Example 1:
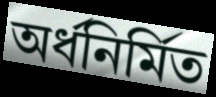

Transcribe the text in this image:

অর্ধনির্মিত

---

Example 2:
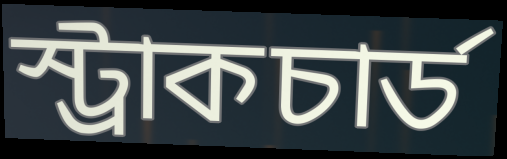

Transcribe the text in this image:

স্ট্রাকচার্ড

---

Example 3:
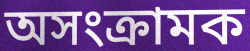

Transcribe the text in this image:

অসংক্রামক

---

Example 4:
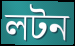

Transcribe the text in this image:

লটন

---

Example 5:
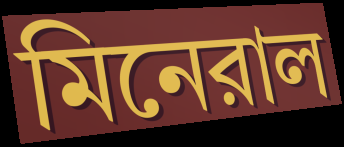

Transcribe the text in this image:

মিনেরাল